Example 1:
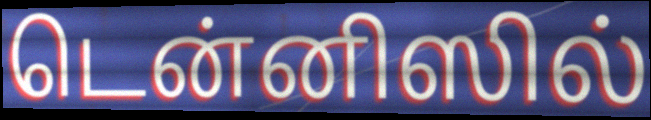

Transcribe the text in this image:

டென்னிஸில்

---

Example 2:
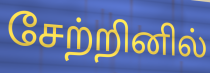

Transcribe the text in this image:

சேற்றினில்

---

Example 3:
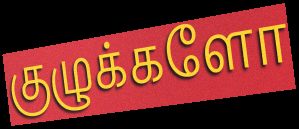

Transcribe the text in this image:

குழுக்களோ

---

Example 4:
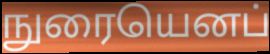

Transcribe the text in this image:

நுரையெனப்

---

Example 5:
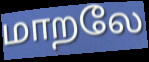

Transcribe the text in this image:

மாறலே